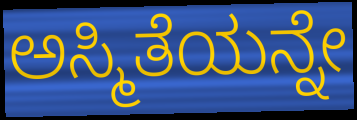
ಅಸ್ಮಿತೆಯನ್ನೇ